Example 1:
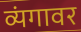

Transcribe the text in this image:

व्यंगावर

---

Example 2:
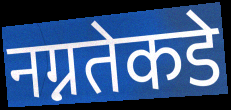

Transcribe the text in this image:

नग्नतेकडे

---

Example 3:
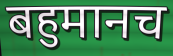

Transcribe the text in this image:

बहुमानच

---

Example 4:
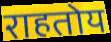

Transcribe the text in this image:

राहतोय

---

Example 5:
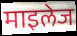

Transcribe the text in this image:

माइलेज